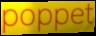
poppet